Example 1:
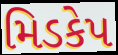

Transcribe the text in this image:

મિડકેપ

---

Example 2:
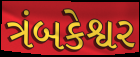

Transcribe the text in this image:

ત્રંબકેશ્વર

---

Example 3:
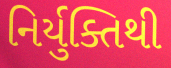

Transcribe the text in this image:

નિર્યુક્તિથી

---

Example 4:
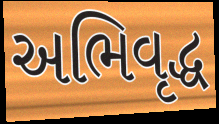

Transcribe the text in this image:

અભિવૃદ્ધ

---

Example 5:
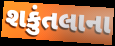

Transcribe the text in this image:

શકુંતલાના